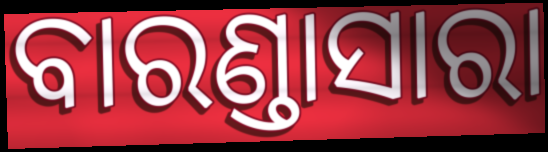
ବାରଣ୍ଡାସାରା